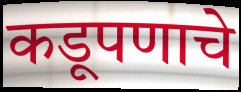
कडूपणाचे